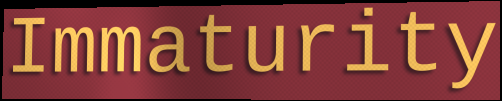
Immaturity